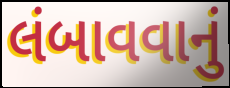
લંબાવવાનું